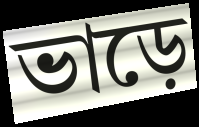
ভাড়ে